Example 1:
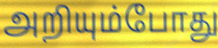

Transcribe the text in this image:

அறியும்போது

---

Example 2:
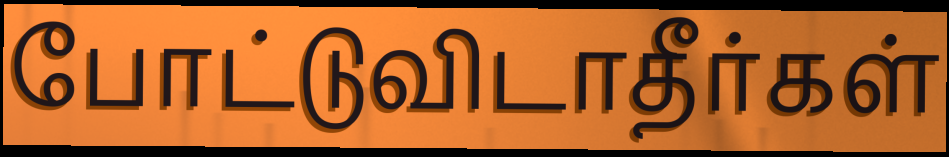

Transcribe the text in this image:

போட்டுவிடாதீர்கள்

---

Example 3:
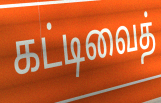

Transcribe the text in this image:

கட்டிவைத்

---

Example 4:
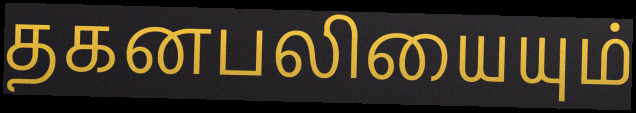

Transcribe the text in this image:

தகனபலியையும்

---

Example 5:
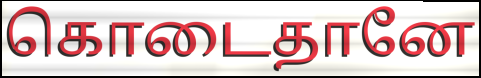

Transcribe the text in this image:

கொடைதானே